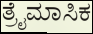
ತ್ರೈಮಾಸಿಕ